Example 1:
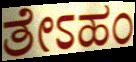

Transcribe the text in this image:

ತೇಽಹಂ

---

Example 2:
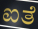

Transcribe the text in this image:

ಐತೆ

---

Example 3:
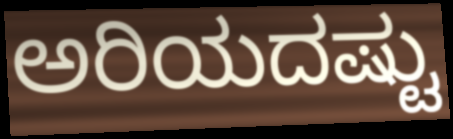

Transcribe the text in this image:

ಅರಿಯದಷ್ಟು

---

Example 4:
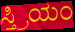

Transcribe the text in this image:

ಸ್ತ್ರಿಯಂ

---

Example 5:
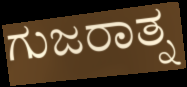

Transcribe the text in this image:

ಗುಜರಾತ್ನ